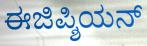
ಈಜಿಪ್ಶಿಯನ್